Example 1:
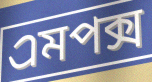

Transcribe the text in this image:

এমপক্স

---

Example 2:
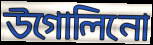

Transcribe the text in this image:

উগোলিনো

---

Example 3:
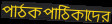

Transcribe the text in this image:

পাঠকপাঠিকাদের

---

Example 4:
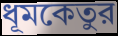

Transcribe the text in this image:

ধূমকেতুর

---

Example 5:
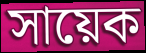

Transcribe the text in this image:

সায়েক